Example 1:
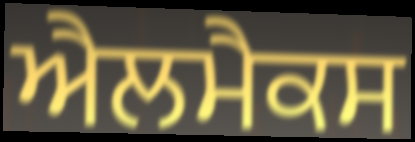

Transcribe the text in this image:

ਐਲਮੈਕਸ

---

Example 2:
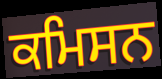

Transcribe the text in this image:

ਕਮਿਸਨ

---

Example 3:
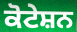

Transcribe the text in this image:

ਕੋਟੇਸ਼ਨ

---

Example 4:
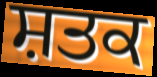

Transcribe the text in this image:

ਸ਼ਤਕ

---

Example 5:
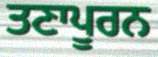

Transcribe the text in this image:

ਤਣਾਪੂਰਨ